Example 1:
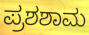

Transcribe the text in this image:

ಪ್ರಶಶಾಮ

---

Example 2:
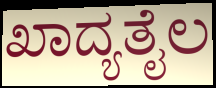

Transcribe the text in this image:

ಖಾದ್ಯತೈಲ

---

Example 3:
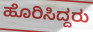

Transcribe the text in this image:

ಹೊರಿಸಿದ್ದರು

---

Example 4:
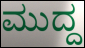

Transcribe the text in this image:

ಮುದ್ದ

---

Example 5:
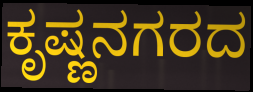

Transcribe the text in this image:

ಕೃಷ್ಣನಗರದ